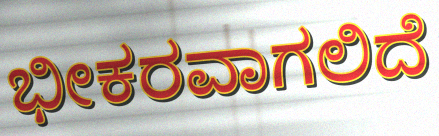
ಭೀಕರವಾಗಲಿದೆ